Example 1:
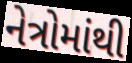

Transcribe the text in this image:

નેત્રોમાંથી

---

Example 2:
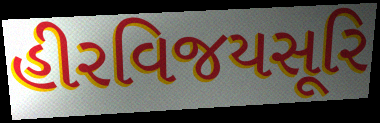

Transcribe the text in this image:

હીરવિજયસૂરિ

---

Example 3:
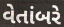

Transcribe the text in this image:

વેતાંબરે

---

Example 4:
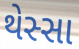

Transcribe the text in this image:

થેસ્સા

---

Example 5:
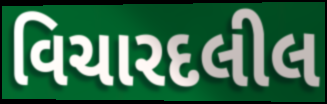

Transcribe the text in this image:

વિચારદલીલ